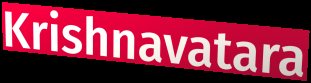
Krishnavatara